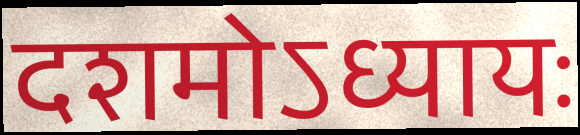
दशमोऽध्यायः